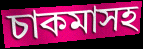
চাকমাসহ